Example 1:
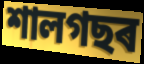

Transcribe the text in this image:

শালগছৰ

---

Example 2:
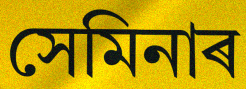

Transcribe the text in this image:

সেমিনাৰ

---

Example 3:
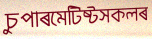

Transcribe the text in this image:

চুপাৰমেটিষ্টসকলৰ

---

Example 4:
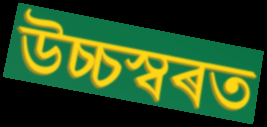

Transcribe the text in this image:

উচ্চস্বৰত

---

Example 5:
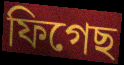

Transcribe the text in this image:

ফিগেছ